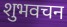
शुभवचन